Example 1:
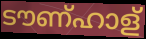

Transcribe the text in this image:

ടൗണ്ഹാള്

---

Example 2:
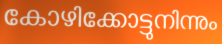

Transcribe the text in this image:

കോഴിക്കോട്ടുനിന്നും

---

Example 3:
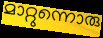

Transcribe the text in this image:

മാറ്റുന്നൊരു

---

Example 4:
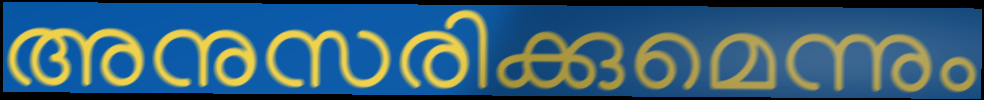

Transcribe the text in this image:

അനുസരിക്കുമെന്നും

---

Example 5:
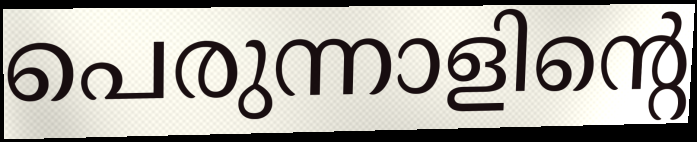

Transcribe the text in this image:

പെരുന്നാളിന്റെ